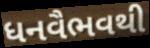
ધનવૈભવથી